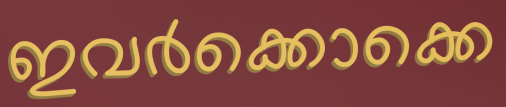
ഇവർക്കൊക്കെ